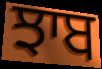
ਝਾਬ